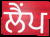
ਲੈਂਪ